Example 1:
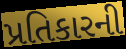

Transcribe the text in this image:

પ્રતિકારની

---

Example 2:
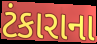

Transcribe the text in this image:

ટંકારાના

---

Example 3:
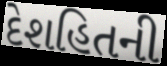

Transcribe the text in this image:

દેશહિતની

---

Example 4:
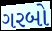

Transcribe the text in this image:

ગરબો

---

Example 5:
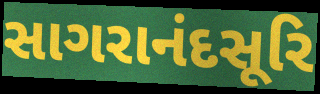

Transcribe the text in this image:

સાગરાનંદસૂરિ